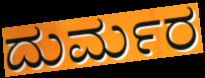
ದುರ್ಮರ